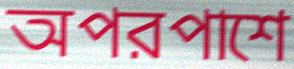
অপরপাশে